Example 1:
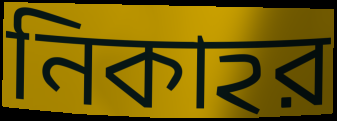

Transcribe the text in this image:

নিকাহর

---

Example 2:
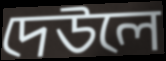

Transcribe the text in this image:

দেউলে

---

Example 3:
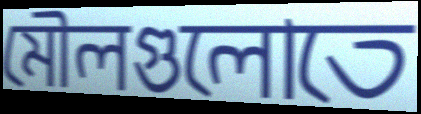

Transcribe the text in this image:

মৌলগুলোতে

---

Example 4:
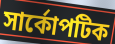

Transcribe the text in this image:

সার্কোপটিক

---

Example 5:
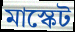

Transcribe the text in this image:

মাস্কেট